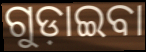
ଗୁଡ଼ାଇବା